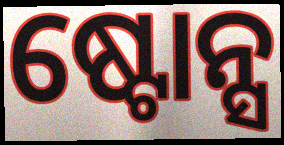
ଷ୍ଟୋନ୍ସ